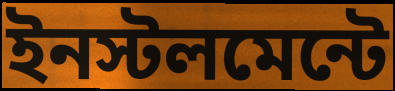
ইনস্টলমেন্টে